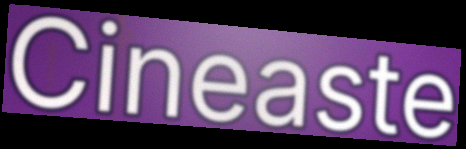
Cineaste